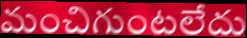
మంచిగుంటలేదు